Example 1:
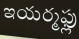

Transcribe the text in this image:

ఇయర్మఫ్లు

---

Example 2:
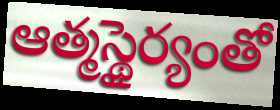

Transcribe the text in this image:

ఆత్మస్థైర్యంతో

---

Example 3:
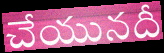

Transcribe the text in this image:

చేయునదీ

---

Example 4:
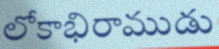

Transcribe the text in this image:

లోకాభిరాముడు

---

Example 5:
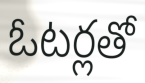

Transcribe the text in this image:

ఓటర్లతో